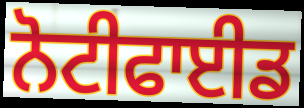
ਨੋਟੀਫਾਈਡ